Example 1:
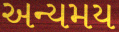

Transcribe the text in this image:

અન્યમય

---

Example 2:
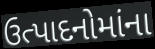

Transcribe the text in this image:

ઉત્પાદનોમાંના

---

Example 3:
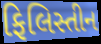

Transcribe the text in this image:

ફિલિસ્તીન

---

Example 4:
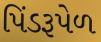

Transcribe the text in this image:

પિંડરૂપેળ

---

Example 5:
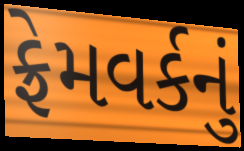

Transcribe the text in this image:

ફ્રેમવર્કનું